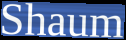
Shaum